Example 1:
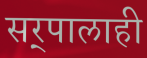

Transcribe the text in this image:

सर्पालाही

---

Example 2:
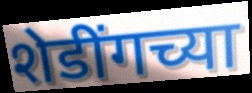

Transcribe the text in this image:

शेडींगच्या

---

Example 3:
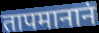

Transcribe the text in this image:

तापमानानं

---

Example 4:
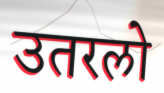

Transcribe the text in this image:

उतरलो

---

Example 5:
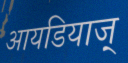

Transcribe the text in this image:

आयडियाज्